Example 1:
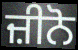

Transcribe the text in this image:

ਜ਼ੀਨੋ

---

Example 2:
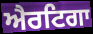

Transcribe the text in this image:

ਐਰਟਿਗਾ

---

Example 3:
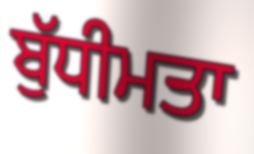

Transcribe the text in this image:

ਬੁੱਧੀਮਤਾ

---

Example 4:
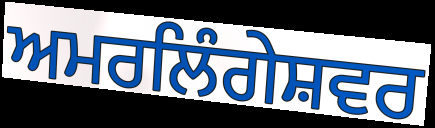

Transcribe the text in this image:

ਅਮਰਲਿੰਗੇਸ਼ਵਰ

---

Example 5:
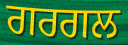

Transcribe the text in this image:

ਗਰਗਲ